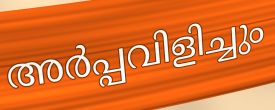
അർപ്പവിളിച്ചും